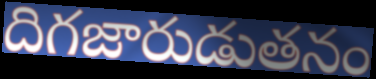
దిగజారుడుతనం